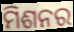
ମିଶନର